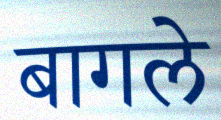
बागले